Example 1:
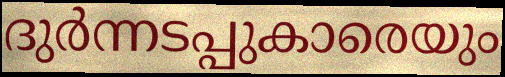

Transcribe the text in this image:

ദുർന്നടപ്പുകാരെയും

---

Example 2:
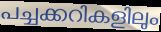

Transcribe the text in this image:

പച്ചക്കറികളിലും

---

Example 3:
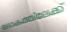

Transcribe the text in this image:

ലോകത്തിലേക്ക്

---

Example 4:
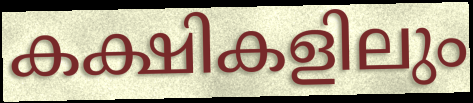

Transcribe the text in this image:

കക്ഷികളിലും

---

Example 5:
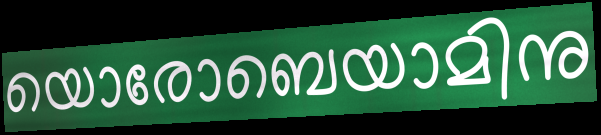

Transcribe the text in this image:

യൊരോബെയാമിനു